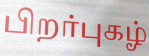
பிறர்புகழ்